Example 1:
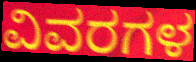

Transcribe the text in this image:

ವಿವರಗಳ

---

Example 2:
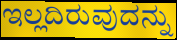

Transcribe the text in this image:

ಇಲ್ಲದಿರುವುದನ್ನು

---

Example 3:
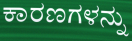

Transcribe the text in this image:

ಕಾರಣಗಳನ್ನು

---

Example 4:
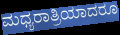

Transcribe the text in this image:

ಮಧ್ಯರಾತ್ರಿಯಾದರೂ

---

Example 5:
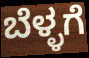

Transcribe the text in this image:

ಬೆಳ್ಳಗೆ